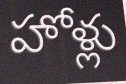
హోళ్లు